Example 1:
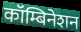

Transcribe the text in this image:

कॉम्बिनेशन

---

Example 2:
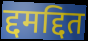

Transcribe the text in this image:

द्दमद्दित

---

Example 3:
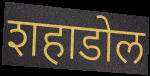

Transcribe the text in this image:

शहाडोल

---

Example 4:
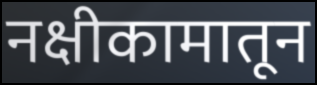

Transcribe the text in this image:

नक्षीकामातून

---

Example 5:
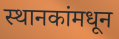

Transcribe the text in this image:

स्थानकांमधून